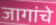
जागांचे